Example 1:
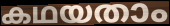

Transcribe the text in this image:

കഥയതാം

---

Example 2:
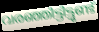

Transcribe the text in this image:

വരഞ്ഞിട്ടിട്ടുണ്ട്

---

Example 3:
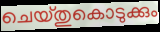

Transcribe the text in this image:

ചെയ്തുകൊടുക്കും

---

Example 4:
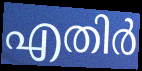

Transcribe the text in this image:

എതിർ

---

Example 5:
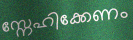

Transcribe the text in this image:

സ്നേഹിക്കേണം